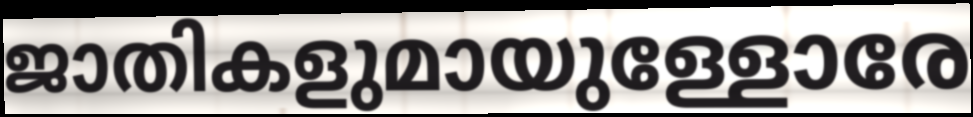
ജാതികളുമായുള്ളോരേ